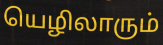
யெழிலாரும்